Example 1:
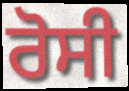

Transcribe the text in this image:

ਰੋਸੀ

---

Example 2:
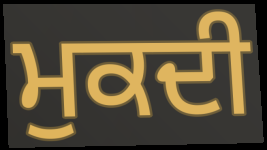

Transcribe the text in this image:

ਮੁਕਦੀ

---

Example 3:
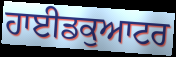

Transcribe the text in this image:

ਹਾਈਡਕੁਆਟਰ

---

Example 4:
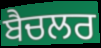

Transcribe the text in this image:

ਬੈਚਲਰ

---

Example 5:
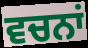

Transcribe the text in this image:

ਵਚਨਾਂ